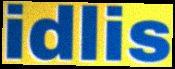
idlis